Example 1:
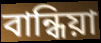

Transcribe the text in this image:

বান্ধিয়া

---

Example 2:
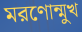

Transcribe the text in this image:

মরণোন্মুখ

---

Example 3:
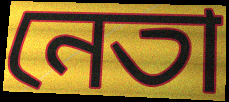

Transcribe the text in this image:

নেতা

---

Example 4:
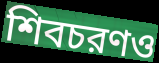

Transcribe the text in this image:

শিবচরণও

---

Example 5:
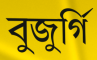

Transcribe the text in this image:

বুজুর্গি